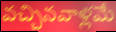
వచ్చినవాళ్లమే